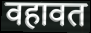
वहावत